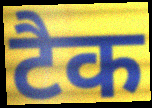
टैक